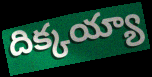
దిక్కయ్యా